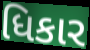
ધિકાર